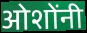
ओशोंनी